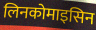
लिनकोमाइसिन